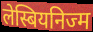
लेस्बियनिज्म